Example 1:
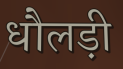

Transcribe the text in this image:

धौलड़ी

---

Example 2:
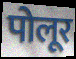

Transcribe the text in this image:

पोलूर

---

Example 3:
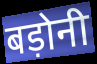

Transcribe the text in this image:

बड़ोनी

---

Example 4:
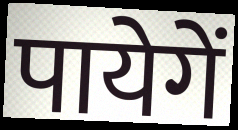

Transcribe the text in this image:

पायेगें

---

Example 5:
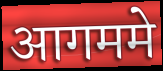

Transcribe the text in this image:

आगममे